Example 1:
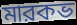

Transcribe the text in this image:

মারকভ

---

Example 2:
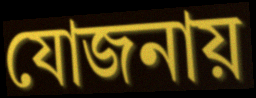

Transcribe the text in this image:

যোজনায়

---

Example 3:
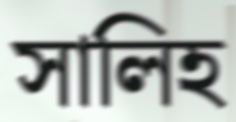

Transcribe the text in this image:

সালিহ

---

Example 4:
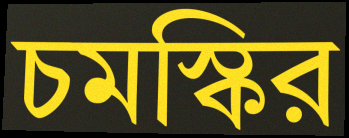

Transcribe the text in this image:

চমস্কির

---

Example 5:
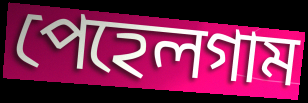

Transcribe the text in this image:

পেহেলগাম